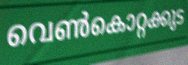
വെൺകൊറ്റക്കുട